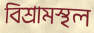
বিশ্রামস্থল